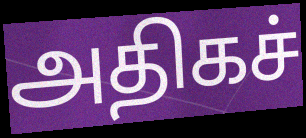
அதிகச்